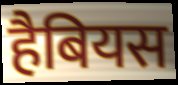
हैबियस